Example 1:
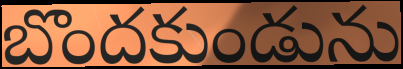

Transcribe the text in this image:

బొందకుండును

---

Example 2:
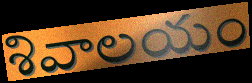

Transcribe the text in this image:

శివాలయం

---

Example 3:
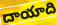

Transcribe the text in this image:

దాయాది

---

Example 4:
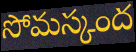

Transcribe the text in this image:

సోమస్కంద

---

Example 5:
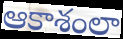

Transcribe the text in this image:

ఆకాశంలా